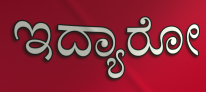
ಇದ್ಯಾರೋ